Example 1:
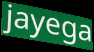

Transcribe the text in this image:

jayega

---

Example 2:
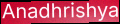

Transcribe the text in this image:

Anadhrishya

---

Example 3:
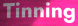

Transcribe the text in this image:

Tinning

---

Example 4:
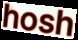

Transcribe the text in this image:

hosh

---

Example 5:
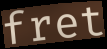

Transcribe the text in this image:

fret